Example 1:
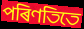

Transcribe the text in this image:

পৰিণতিতে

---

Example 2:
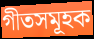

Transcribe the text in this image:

গীতসমূহক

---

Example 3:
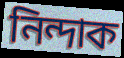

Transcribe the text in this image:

নিন্দাক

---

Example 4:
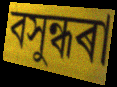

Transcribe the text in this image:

বসুন্ধৰা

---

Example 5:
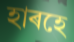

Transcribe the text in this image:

হাৰহে